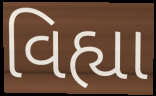
વિહ્યા